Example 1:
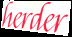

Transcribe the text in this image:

herder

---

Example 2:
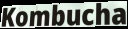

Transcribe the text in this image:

Kombucha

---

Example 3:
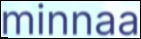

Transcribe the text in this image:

minnaa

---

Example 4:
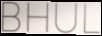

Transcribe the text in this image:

BHUL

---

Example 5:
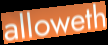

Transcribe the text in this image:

alloweth